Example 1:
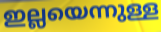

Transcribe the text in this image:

ഇല്ലയെന്നുള്ള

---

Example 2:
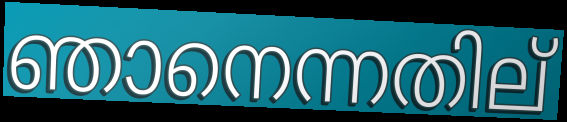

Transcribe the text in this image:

ഞാനെന്നതില്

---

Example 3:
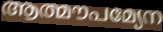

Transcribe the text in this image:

ആത്മൗപമ്യേന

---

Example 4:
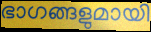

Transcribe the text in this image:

ഭാഗങ്ങളുമായി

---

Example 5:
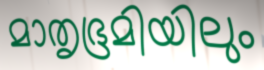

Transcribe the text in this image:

മാതൃഭൂമിയിലും